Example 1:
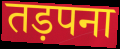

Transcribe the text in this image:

तड़पना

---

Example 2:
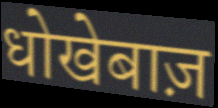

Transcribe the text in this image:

धोखेबाज़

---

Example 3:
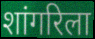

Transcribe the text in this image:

शांगरिला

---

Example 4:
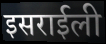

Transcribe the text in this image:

इसराईली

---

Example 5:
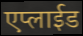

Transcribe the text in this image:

एप्लाईड